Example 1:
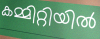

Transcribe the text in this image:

കമ്മിറ്റിയിൽ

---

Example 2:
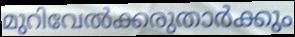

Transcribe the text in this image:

മുറിവേൽക്കരുതാർക്കും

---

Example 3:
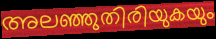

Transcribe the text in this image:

അലഞ്ഞുതിരിയുകയും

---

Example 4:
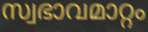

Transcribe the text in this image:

സ്വഭാവമാറ്റം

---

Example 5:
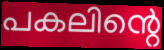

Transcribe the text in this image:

പകലിന്റെ